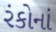
રંકોનાં